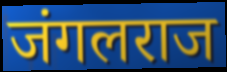
जंगलराज